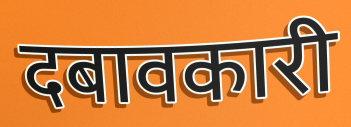
दबावकारी